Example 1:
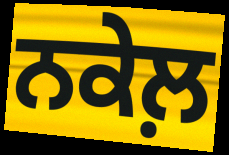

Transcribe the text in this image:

ਨਕੇਲ਼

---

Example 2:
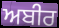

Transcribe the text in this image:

ਅਬੀਰ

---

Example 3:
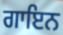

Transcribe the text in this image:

ਗਾਇਨ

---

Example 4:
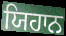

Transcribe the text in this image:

ਯਿਹਾਨ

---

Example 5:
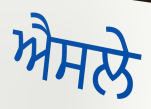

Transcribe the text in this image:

ਐਸਲੇ